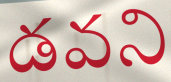
డవని